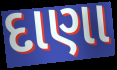
દાણા